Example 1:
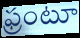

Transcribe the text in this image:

ఫ్రంటూ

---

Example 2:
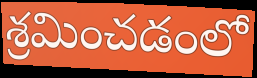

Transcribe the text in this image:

శ్రమించడంలో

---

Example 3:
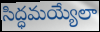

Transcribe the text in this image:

సిద్ధమయ్యేలా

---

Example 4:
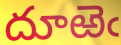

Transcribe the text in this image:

దూఱెఁ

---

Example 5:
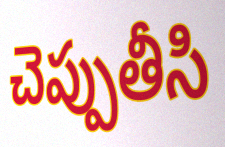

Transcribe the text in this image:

చెప్పుతీసి